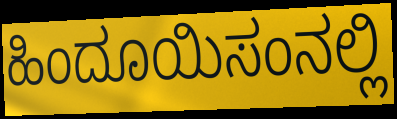
ಹಿಂದೂಯಿಸಂನಲ್ಲಿ